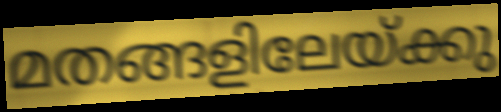
മതങ്ങളിലേയ്ക്കു